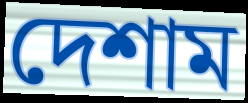
দেশাম